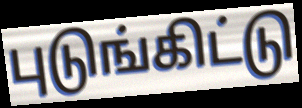
புடுங்கிட்டு